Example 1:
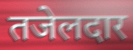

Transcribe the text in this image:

तजेलदार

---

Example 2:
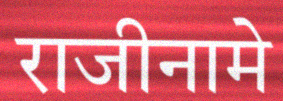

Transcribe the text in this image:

राजीनामे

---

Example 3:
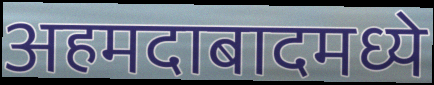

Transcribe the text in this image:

अहमदाबादमध्ये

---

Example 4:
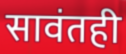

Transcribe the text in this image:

सावंतही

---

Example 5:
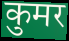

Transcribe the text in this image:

कुमर